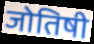
जोतिषी